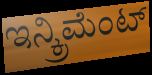
ಇನ್ಕ್ರಿಮೆಂಟ್